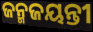
ଜନ୍ମଜୟନ୍ତୀ